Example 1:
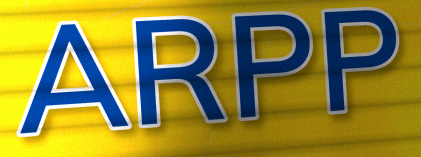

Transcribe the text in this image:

ARPP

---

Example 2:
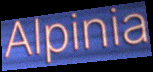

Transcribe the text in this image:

Alpinia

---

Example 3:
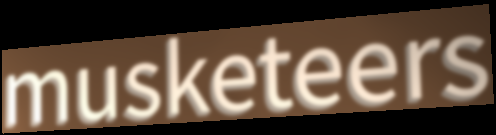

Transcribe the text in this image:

musketeers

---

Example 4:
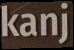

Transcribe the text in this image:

kanj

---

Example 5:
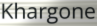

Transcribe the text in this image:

Khargone